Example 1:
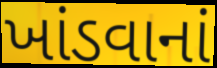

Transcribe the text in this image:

ખાંડવાનાં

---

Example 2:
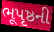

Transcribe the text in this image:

ભૂપૃષ્ઠની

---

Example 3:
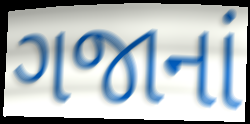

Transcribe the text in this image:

ગજાનાં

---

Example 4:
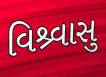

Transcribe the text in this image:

વિશ્ર્વાસુ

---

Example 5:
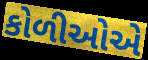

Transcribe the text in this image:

કોળીઓએ